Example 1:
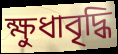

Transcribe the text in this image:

ক্ষুধাবৃদ্ধি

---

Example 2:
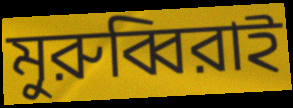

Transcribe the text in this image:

মুরুব্বিরাই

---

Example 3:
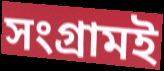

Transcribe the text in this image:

সংগ্রামই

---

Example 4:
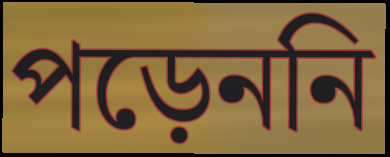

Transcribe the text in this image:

পড়েননি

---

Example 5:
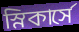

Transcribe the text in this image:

স্নিকার্সে